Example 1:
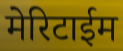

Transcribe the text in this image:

मेरिटाईम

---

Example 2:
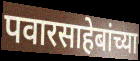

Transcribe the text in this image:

पवारसाहेबांच्या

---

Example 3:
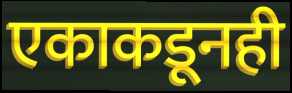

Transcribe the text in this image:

एकाकडूनही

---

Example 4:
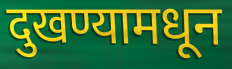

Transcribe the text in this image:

दुखण्यामधून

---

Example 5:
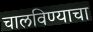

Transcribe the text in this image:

चालविण्याचा